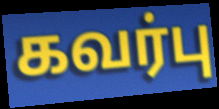
கவர்பு